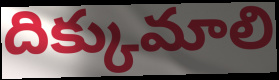
దిక్కుమాలి